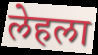
लेहला